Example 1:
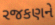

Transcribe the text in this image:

રજકણને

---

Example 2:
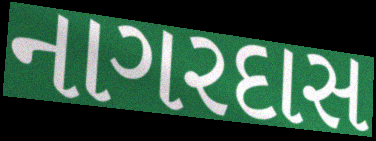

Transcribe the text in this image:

નાગરદાસ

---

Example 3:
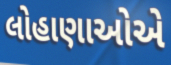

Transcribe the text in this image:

લોહાણાઓએ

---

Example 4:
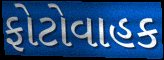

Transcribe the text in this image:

ફોટોવાહક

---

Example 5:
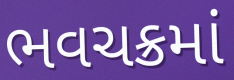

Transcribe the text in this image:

ભવચક્રમાં